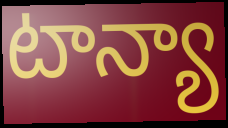
టాన్యా